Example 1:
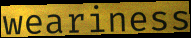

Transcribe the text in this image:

weariness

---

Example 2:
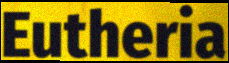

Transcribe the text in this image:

Eutheria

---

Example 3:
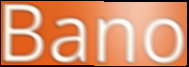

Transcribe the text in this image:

Bano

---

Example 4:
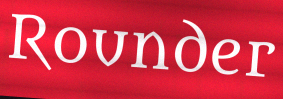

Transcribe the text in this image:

Rounder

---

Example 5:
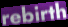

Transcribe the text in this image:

rebirth